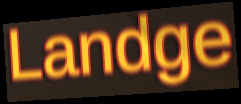
Landge